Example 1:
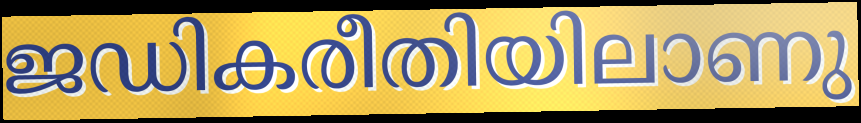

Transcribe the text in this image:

ജഡികരീതിയിലാണു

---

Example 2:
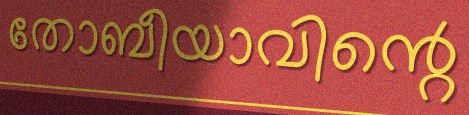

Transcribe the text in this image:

തോബീയാവിന്റെ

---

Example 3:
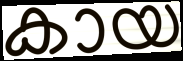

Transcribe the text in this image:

കായ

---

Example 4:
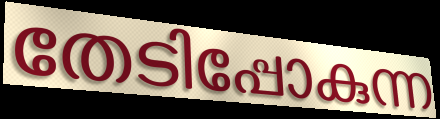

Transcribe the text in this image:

തേടിപ്പോകുന്ന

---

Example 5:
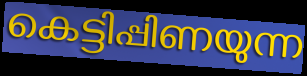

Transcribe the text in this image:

കെട്ടിപ്പിണയുന്ന